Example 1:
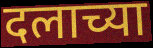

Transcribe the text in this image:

दलाच्या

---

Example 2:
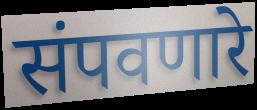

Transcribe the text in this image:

संपवणारे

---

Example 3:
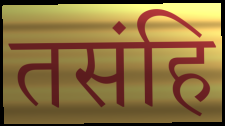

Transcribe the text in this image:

तसंहि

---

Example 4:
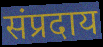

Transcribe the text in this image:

संप्रदाय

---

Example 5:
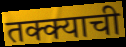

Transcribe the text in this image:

तक्क्याची